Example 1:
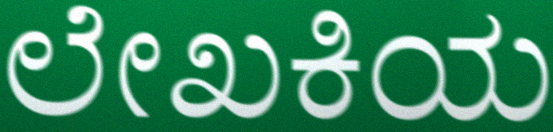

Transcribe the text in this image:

ಲೇಖಕಿಯ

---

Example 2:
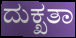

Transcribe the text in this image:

ದುಕ್ಖತಾ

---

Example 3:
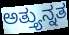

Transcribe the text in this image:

ಅತ್ತ್ಯುನ್ನತ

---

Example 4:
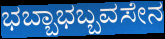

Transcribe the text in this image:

ಭಬ್ಬಾಭಬ್ಬವಸೇನ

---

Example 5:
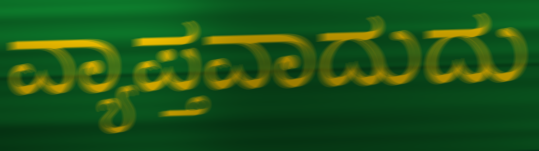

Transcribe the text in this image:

ವ್ಯಾಪ್ತವಾದುದು